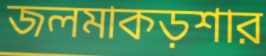
জলমাকড়শার